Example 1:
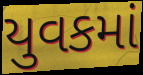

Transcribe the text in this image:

યુવકમાં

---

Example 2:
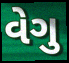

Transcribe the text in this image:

વેગુ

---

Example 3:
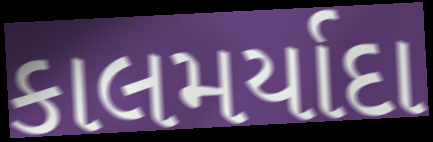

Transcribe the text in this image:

કાલમર્યાદા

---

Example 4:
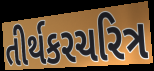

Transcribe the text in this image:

તીર્થકરચરિત્ર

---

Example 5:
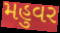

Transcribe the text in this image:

મહુવર